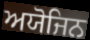
ਅਯੋਜਿਨ